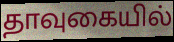
தாவுகையில்